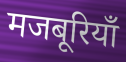
मजबूरियाँ